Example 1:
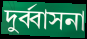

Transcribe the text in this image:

দুর্ব্বাসনা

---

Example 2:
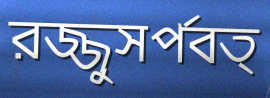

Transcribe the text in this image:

রজ্জুসর্পবত্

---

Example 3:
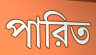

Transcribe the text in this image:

পারিত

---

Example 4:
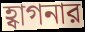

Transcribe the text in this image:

হ্বাগনার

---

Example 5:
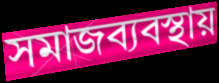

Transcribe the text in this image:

সমাজব্যবস্থায়